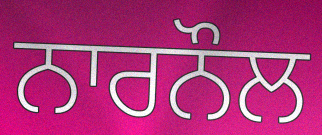
ਨਾਰਨੌਲ